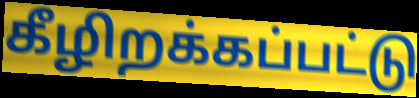
கீழிறக்கப்பட்டு